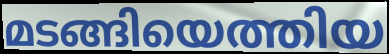
മടങ്ങിയെത്തിയ